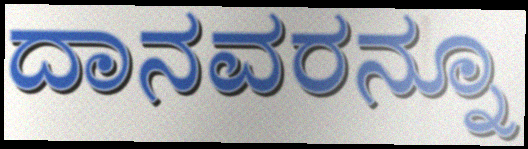
ದಾನವರನ್ನೂ